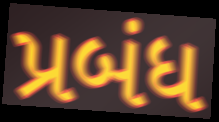
પ્રબંધ